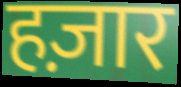
हज़ार